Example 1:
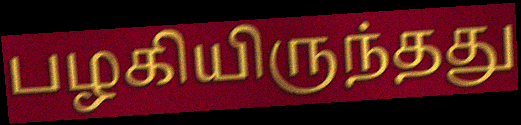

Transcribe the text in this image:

பழகியிருந்தது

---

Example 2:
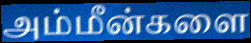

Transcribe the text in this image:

அம்மீன்களை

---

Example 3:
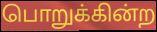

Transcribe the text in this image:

பொறுக்கின்ற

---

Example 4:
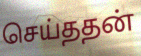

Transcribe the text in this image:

செய்ததன்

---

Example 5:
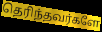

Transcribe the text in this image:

தெரிந்தவர்களே